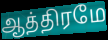
ஆத்திரமே